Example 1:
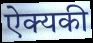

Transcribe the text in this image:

ऐक्यकी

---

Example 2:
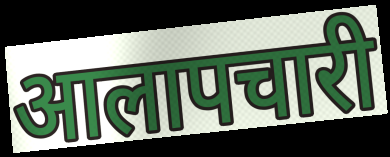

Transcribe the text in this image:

आलापचारी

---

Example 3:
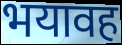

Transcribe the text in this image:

भयावह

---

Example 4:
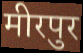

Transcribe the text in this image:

मीरपुर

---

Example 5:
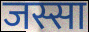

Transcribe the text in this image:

जस्सा